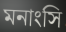
মনাংসি